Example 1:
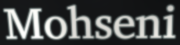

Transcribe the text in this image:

Mohseni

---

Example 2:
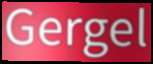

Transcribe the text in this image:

Gergel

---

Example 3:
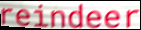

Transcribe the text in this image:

reindeer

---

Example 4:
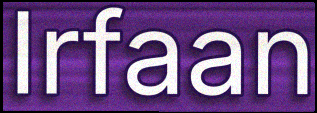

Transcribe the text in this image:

Irfaan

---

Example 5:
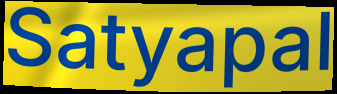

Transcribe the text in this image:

Satyapal